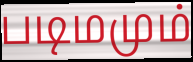
படிமமும்